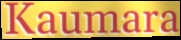
Kaumara